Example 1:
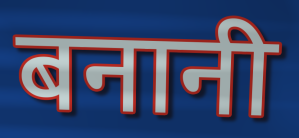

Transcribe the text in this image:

बनानी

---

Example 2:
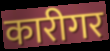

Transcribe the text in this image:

कारीगर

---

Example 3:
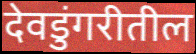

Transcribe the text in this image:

देवडुंगरीतील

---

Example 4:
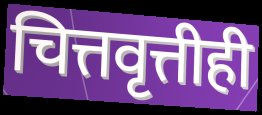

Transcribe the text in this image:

चित्तवृत्तीही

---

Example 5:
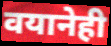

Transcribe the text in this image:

वयानेही